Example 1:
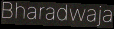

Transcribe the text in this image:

Bharadwaja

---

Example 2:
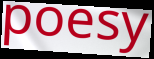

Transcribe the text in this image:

poesy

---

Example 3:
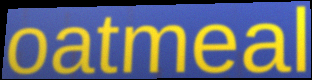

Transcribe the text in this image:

oatmeal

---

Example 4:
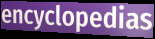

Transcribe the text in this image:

encyclopedias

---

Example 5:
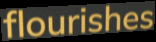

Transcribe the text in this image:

flourishes